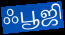
ஃபூஜி